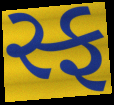
સ્ફ